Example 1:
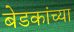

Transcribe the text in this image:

बेडकांच्या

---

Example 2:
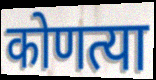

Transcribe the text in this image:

कोणत्या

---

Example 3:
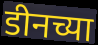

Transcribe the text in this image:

डीनच्या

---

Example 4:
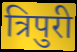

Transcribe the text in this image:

त्रिपुरी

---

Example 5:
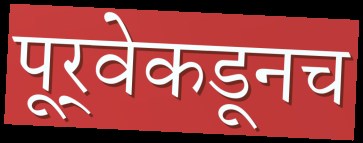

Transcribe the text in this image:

पूर्वेकडूनच